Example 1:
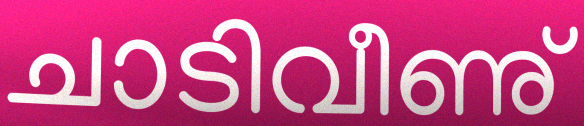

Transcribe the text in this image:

ചാടിവീണു്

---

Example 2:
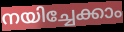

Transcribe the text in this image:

നയിച്ചേക്കാം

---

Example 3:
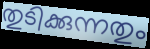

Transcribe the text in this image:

തുടിക്കുന്നതും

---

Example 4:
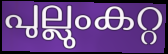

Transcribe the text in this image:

പുല്ലുംകറ്റ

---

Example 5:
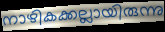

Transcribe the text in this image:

നാഴികക്കല്ലായിരുന്നു